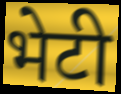
भेटी